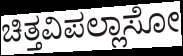
ಚಿತ್ತವಿಪಲ್ಲಾಸೋ